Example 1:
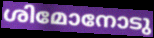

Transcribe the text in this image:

ശിമോനോടു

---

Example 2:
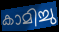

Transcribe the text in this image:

കാമിച്ചു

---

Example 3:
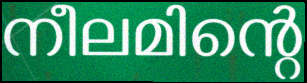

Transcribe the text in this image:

നീലമിന്റെ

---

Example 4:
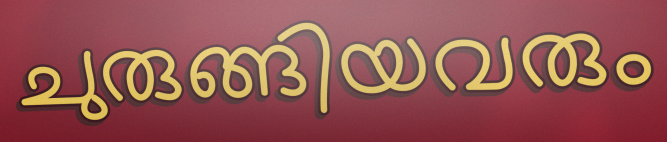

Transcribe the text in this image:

ചുരുങ്ങിയവരും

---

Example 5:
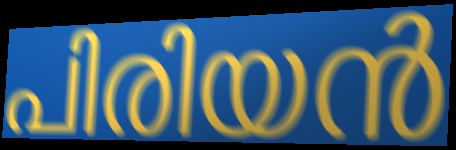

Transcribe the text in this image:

പിരിയൻ